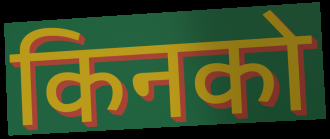
किनको